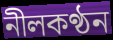
নীলকণ্ঠন